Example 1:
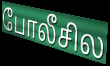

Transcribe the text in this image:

போலீசில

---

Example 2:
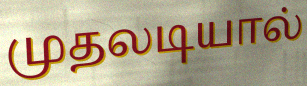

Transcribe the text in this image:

முதலடியால்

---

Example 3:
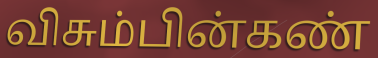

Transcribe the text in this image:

விசும்பின்கண்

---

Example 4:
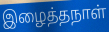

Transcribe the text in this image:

இழைத்தநாள்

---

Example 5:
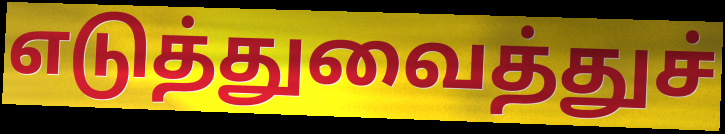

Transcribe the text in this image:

எடுத்துவைத்துச்